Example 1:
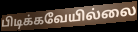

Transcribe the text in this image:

பிடிக்கவேயில்லை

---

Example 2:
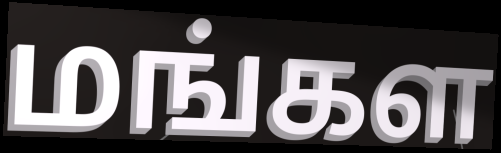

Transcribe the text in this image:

மங்கள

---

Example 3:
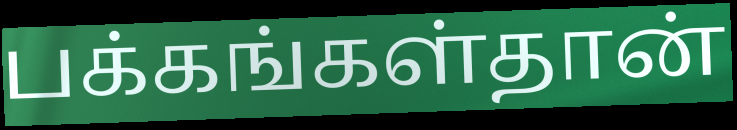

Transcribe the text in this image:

பக்கங்கள்தான்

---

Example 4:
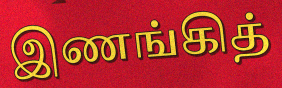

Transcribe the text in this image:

இணங்கித்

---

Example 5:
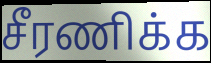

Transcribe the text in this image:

சீரணிக்க